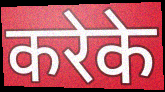
करेके